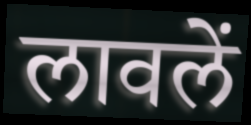
लावलें